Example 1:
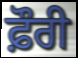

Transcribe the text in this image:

ਫ਼ੌਰੀ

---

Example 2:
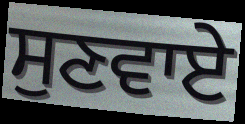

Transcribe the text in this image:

ਸੁਣਵਾਏ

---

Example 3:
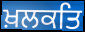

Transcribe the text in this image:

ਖ਼ਲਕਤਿ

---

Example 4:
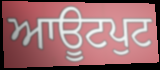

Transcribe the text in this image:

ਆਊਟਪੁਟ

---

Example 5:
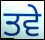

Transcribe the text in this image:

ਤਵੇ